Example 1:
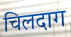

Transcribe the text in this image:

चिलदाग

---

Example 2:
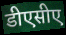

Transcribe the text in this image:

डीएसीए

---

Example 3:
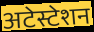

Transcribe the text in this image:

अटेस्टेशन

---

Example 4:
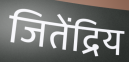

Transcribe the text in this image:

जितेंद्रिय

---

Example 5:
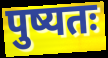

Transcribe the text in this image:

पुष्यतः